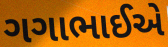
ગગાભાઈએ